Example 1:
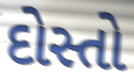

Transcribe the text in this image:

દોસ્તો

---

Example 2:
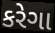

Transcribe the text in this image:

કરેગા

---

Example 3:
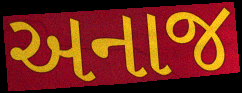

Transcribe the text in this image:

અનાજ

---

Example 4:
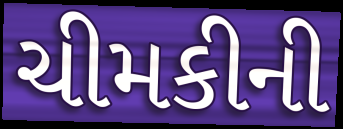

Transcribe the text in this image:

ચીમકીની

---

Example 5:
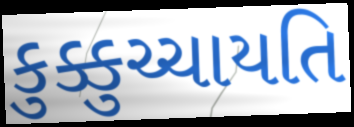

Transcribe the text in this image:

કુક્કુચ્ચાયતિ